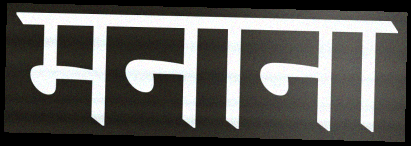
मनाना